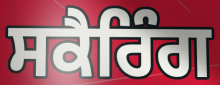
ਸਕੈਰਿੰਗ